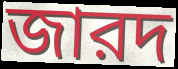
জারদ